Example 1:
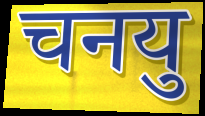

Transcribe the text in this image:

चनयु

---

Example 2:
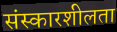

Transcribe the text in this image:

संस्कारशीलता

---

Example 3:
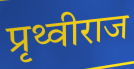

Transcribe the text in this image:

प्रृथ्वीराज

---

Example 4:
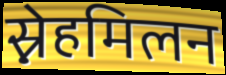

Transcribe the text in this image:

स्नेहमिलन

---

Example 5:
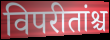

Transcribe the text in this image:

विपरीतांश्च